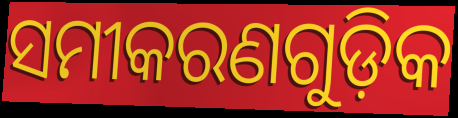
ସମୀକରଣଗୁଡ଼ିକ